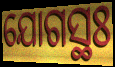
ଯୋଗସ୍ଥଃ